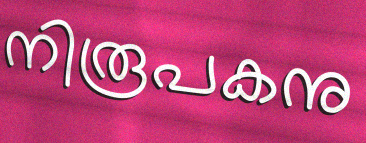
നിരൂപകനു